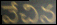
వేచిన